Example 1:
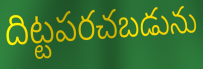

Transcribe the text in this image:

దిట్టపరచబడును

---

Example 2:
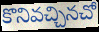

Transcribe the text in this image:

కొనివచ్చినచో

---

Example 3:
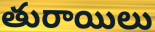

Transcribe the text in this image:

తురాయిలు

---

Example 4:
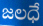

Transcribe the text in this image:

జలధే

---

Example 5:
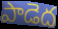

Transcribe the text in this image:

పాడెద